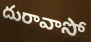
దురావాసో